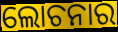
ଲୋଚନାର